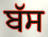
ਬੱਸ